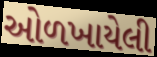
ઓળખાયેલી